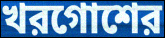
খরগোশের